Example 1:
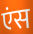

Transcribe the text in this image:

एंस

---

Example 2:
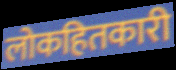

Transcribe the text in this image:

लोकहितकारी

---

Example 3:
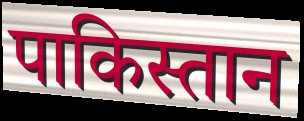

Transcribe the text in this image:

पाकिस्तान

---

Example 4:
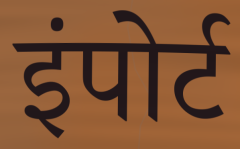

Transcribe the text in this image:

इंपोर्ट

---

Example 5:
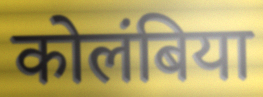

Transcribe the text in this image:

कोलंबिया